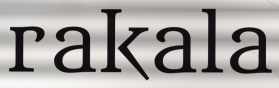
rakala